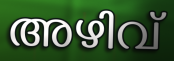
അഴിവ്